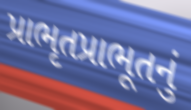
પ્રાભૃતપ્રાભૂતનું